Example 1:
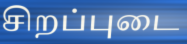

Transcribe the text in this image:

சிறப்புடை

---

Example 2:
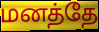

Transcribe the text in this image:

மனத்தே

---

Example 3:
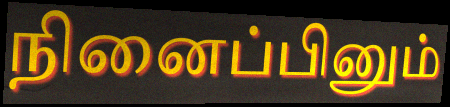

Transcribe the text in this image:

நினைப்பினும்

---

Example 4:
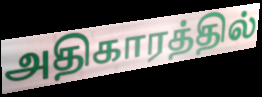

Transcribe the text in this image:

அதிகாரத்தில்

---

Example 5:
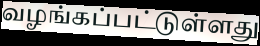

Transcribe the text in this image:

வழங்கப்பட்டுள்ளது